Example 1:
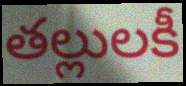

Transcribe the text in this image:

తల్లులకీ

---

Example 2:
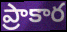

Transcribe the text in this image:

ప్రాకార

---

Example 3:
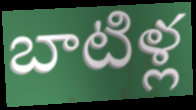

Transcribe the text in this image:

బాటిళ్ల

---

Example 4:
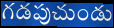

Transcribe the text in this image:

గడపుచుండు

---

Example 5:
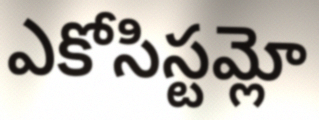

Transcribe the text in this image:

ఎకోసిస్టమ్లో